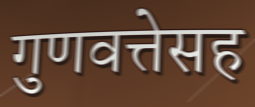
गुणवत्तेसह